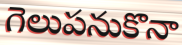
గెలుపనుకొనా